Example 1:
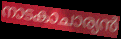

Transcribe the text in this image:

നാടകാചാര്യൻ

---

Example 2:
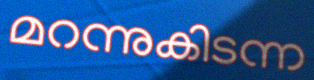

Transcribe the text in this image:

മറന്നുകിടന്ന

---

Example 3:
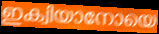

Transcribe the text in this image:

ഇക്വിയാനോയെ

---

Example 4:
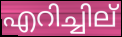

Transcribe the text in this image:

എറിച്ചില്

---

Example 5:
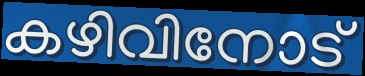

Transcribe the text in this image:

കഴിവിനോട്